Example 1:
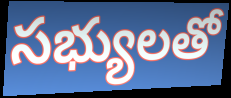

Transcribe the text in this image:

సభ్యులతో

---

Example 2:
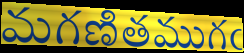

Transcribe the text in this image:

మగణితముగఁ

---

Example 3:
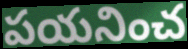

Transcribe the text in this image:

పయనించ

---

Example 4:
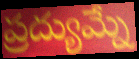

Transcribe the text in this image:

ప్రద్యుమ్నే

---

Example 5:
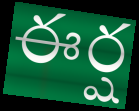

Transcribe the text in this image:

ఈర్ష